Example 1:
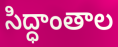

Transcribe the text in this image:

సిద్ధాంతాల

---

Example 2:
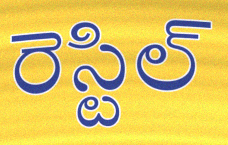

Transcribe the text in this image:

రెస్టిల్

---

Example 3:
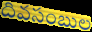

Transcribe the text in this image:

దివసంబుల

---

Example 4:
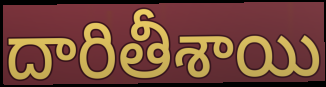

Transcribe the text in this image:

దారితీశాయి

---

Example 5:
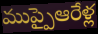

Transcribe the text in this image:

ముప్పైఆరేళ్ల